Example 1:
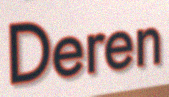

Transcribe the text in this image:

Deren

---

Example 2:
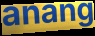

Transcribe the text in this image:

anang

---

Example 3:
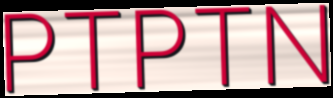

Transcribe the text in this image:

PTPTN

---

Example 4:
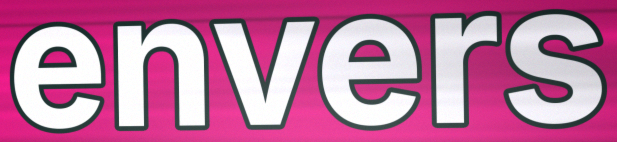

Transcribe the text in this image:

envers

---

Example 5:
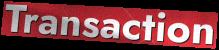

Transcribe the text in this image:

Transaction